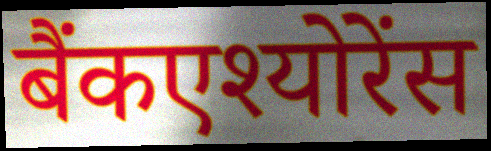
बैंकएश्योरेंस